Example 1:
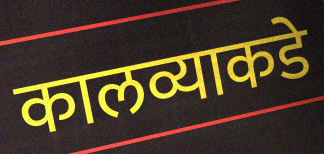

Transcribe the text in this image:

कालव्याकडे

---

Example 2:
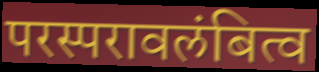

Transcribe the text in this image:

परस्परावलंबित्व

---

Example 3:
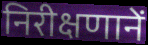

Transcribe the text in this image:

निरीक्षणानें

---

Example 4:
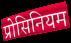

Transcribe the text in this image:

प्रोसिनियम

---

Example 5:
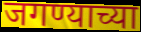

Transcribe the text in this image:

जगण्याच्या